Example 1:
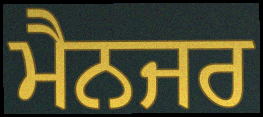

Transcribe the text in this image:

ਮੈਨਜਰ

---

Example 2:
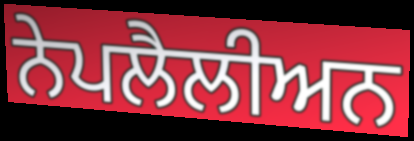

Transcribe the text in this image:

ਨੇਪਲੈਲੀਅਨ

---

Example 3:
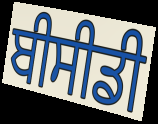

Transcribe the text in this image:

ਬੀਸੀਡੀ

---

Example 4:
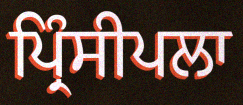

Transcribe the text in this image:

ਪ੍ਰਿੰਸੀਪਲਾ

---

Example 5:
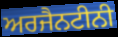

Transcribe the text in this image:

ਅਰਜੈਨਟੀਨੀ